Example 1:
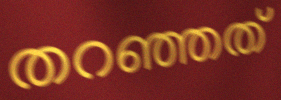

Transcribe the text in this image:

തറഞ്ഞത്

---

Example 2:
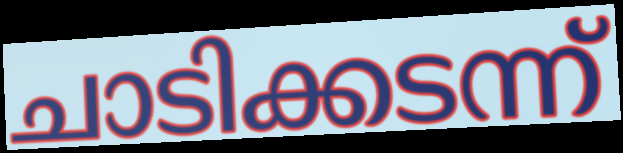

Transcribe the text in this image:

ചാടിക്കടന്ന്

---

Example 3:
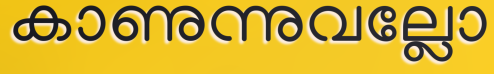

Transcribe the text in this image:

കാണുന്നുവല്ലോ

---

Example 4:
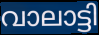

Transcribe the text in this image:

വാലാട്ടി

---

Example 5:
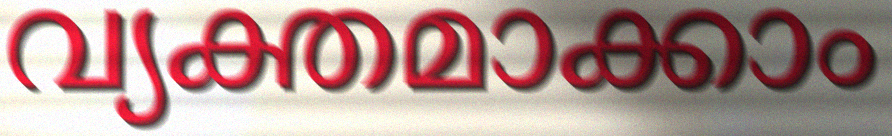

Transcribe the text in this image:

വ്യക്തമാക്കാം